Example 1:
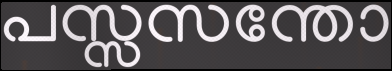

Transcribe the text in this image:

പസ്സസന്തോ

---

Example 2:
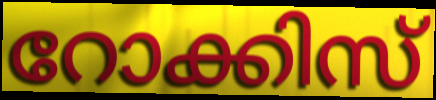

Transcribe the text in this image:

റോക്കിസ്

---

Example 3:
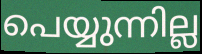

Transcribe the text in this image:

പെയ്യുന്നില്ല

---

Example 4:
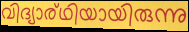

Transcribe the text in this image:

വിദ്യാര്ഥിയായിരുന്നു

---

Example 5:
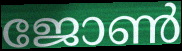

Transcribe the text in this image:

ജോൺ